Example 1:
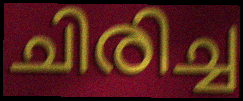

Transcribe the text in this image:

ചിരിച്ച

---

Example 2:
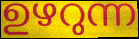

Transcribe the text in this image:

ഉഴറുന്ന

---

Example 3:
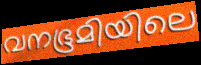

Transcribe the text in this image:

വനഭൂമിയിലെ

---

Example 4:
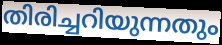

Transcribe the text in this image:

തിരിച്ചറിയുന്നതും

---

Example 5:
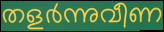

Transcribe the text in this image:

തളർന്നുവീണ